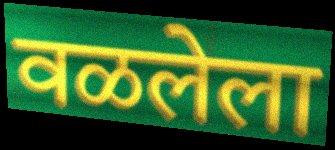
वळलेला